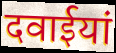
दवाईयां